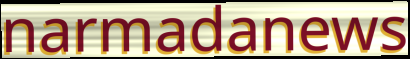
narmadanews